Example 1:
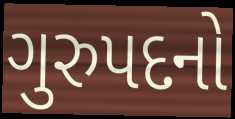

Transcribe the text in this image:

ગુરુપદનો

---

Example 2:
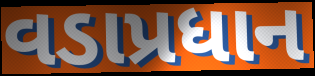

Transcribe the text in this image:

વડાપ્રધાન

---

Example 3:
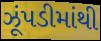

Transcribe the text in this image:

ઝૂંપડીમાંથી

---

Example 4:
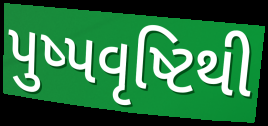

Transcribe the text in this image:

પુષ્પવૃષ્ટિથી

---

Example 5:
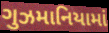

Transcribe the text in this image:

ગુઝમાનિયામાં